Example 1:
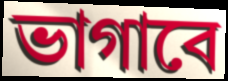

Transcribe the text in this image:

ভাগাবে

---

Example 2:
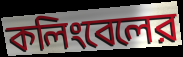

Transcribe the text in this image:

কলিংবেলের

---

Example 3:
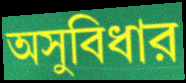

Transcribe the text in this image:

অসুবিধার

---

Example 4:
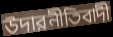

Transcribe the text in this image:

উদারনীতিবাদী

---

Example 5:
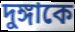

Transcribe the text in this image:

দুঙ্গাকে